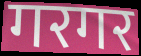
गरगर